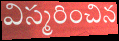
విస్మరించిన